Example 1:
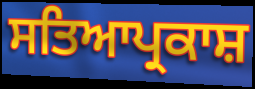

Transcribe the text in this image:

ਸਤਿਆਪ੍ਰਕਾਸ਼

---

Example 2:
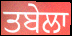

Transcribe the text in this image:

ਤਬੇਲਾ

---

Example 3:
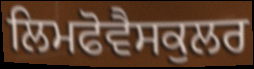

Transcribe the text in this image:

ਲਿਮਫੋਵੈਸਕੁਲਰ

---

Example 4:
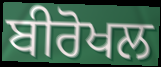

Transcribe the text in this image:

ਬੀਰੋਖਲ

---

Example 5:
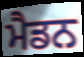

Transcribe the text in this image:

ਮੈਡਨ